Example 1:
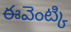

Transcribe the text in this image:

ఈవెంట్కి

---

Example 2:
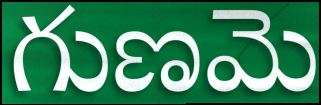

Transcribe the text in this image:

గుణమె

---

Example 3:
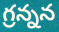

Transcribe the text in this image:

గ్రన్నన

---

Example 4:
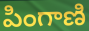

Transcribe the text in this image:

పింగాణి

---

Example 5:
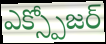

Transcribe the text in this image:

ఎక్స్పోజర్